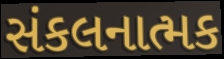
સંકલનાત્મક